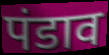
पंडाव